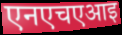
एनएचएआइ